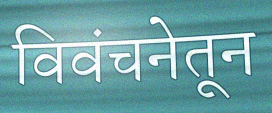
विवंचनेतून